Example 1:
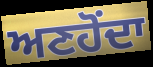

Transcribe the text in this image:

ਅਣਹੋਂਦਾ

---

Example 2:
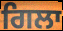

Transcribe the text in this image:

ਗਿਲਾ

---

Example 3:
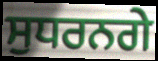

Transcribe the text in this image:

ਸੁਧਰਨਗੇ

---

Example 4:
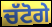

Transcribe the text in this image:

ਚੱਟੋਗੇ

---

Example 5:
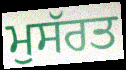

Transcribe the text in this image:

ਮੁਸੱਰਤ